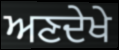
ਅਣਦੇਖੇ